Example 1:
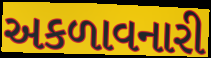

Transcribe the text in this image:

અકળાવનારી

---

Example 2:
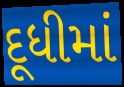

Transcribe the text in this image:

દૂધીમાં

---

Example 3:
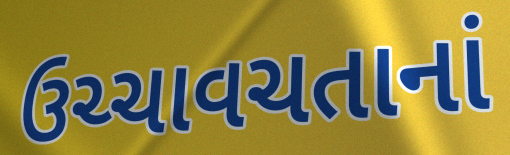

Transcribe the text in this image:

ઉચ્ચાવચતાનાં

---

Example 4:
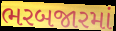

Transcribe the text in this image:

ભરબજારમાં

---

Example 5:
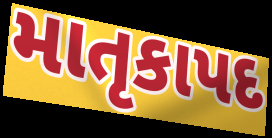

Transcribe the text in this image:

માતૃકાપદ